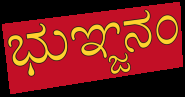
ಭುಞ್ಜನಂ